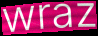
wraz